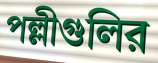
পল্লীগুলির